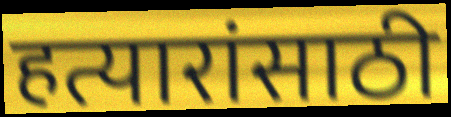
हत्यारांसाठी